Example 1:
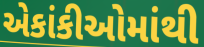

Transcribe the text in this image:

એકાંકીઓમાંથી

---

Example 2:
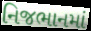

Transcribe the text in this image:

નિજભાનમાં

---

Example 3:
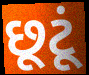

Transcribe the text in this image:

છૂટૂં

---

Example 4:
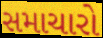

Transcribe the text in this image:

સમાચારો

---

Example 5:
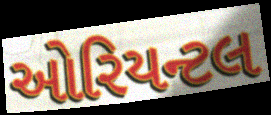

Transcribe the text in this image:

ઓરિયન્ટલ